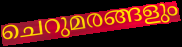
ചെറുമരങ്ങളും